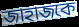
জাহাজকে